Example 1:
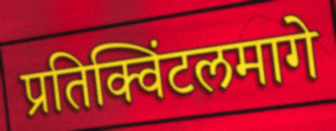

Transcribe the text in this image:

प्रतिक्विंटलमागे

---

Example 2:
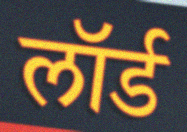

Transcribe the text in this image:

लॉर्ड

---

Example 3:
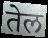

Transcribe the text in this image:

तेल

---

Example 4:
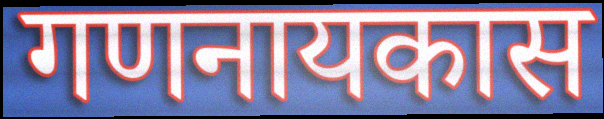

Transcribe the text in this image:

गणनायकास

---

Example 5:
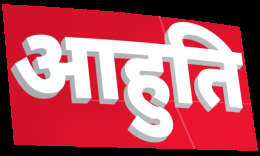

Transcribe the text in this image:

आहुति